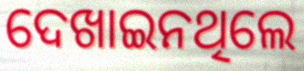
ଦେଖାଇନଥିଲେ